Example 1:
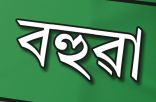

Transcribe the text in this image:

বহুৱা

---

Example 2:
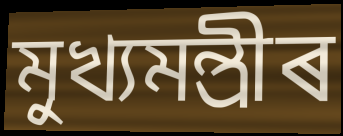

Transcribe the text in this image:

মুখ্যমন্ত্ৰীৰ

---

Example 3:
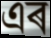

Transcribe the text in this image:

এৰ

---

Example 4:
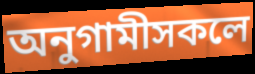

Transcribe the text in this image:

অনুগামীসকলে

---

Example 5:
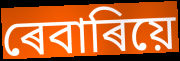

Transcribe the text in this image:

ৰেবাৰিয়ে